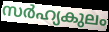
സർഹ്യകുലം